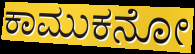
ಕಾಮುಕನೋ